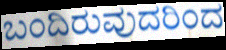
ಬಂದಿರುವುದರಿಂದ